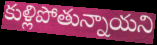
కుళ్లిపోతున్నాయని